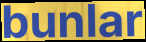
bunlar